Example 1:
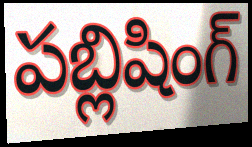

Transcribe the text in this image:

పబ్లిషింగ్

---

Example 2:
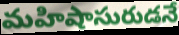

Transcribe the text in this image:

మహిషాసురుడనే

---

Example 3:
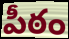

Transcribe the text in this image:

పీఠం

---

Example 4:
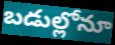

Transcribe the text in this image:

బడుల్లోనూ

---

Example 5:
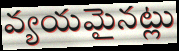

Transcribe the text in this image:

వ్యయమైనట్లు